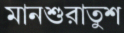
মানশুরাতুশ